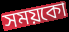
সময়কো